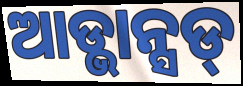
ଆଡ୍ଭାନ୍ସଡ୍